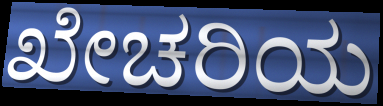
ಖೇಚರಿಯ